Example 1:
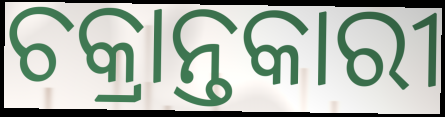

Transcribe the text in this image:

ଚକ୍ରାନ୍ତକାରୀ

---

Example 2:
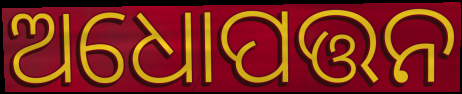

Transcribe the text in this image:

ଅଧୋପତ୍ତନ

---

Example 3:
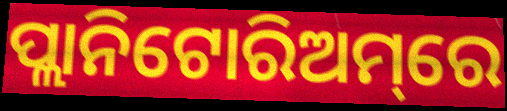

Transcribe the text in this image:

ପ୍ଲାନିଟୋରିଅମ୍‌ରେ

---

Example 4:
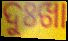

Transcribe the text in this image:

ଦୁଃଖା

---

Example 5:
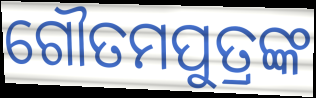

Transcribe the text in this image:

ଗୌତମପୁତ୍ରଙ୍କ